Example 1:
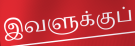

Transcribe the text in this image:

இவளுக்குப்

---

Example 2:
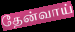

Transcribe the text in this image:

தேன்வாய்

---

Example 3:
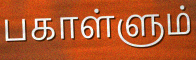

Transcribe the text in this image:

பகாள்ளும்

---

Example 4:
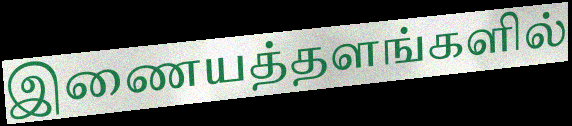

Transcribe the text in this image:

இணையத்தளங்களில்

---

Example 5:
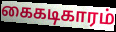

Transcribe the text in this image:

கைகடிகாரம்